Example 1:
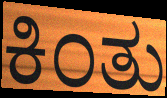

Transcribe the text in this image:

ಕಿಂತು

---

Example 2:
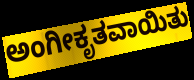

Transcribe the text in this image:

ಅಂಗೀಕೃತವಾಯಿತು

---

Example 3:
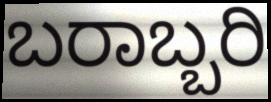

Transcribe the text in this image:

ಬರಾಬ್ಬರಿ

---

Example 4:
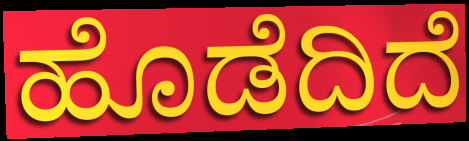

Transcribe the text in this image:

ಹೊಡೆದಿದೆ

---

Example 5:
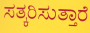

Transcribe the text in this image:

ಸತ್ಕರಿಸುತ್ತಾರೆ